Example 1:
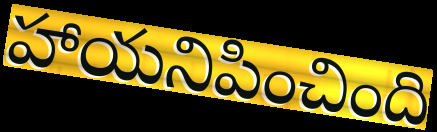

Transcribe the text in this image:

హాయనిపించింది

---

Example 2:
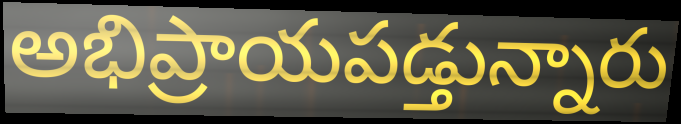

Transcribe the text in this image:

అభిప్రాయపడ్తున్నారు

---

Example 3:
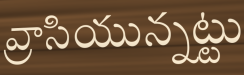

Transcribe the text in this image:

వ్రాసియున్నట్టు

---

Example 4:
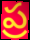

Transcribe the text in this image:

ప్ర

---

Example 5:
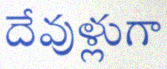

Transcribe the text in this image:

దేవుళ్లుగా